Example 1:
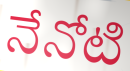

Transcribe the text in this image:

నేనోటి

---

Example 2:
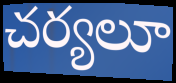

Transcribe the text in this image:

చర్యలూ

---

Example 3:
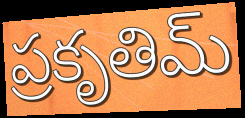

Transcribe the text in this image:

ప్రకృతిమ్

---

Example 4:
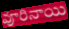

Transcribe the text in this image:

వూరినాయి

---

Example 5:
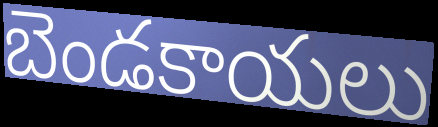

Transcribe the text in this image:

బెండకాయలు